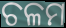
ଚଳମ